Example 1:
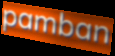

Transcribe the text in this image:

pamban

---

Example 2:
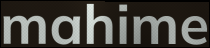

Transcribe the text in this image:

mahime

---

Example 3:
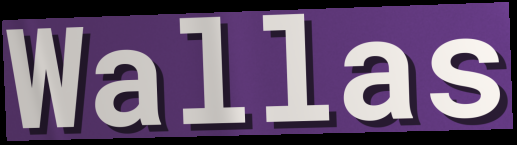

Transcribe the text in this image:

Wallas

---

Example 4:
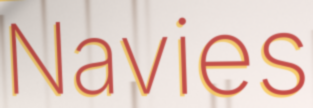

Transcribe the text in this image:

Navies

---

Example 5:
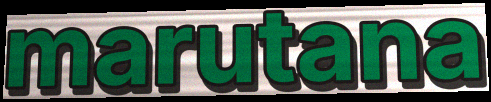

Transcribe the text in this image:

marutana